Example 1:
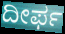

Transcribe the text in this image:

ದೀರ್ಫ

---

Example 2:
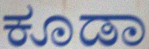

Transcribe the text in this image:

ಕೂಡಾ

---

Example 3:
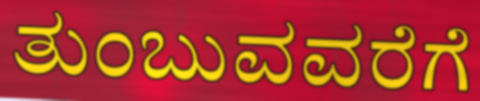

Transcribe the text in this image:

ತುಂಬುವವರೆಗೆ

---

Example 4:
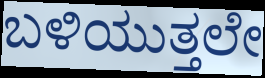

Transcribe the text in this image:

ಬಳಿಯುತ್ತಲೇ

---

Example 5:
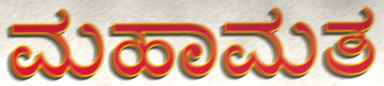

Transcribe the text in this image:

ಮಹಾಮತ